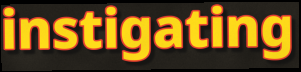
instigating